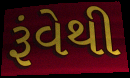
રૂંવેથી